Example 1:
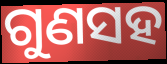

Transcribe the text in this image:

ଗୁଣସହ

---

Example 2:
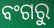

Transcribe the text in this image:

ବଂଗରୁ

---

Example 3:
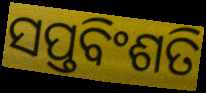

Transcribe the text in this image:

ସପ୍ତବିଂଶତି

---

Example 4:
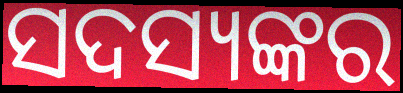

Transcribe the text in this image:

ସଦସ୍ୟଙ୍କର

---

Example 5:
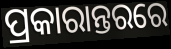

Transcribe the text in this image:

ପ୍ରକାରାନ୍ତରରେ